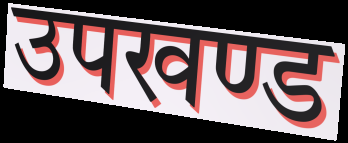
उपखण्ड